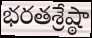
భరతశ్రేష్ఠా